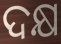
ଦକ୍ଷ